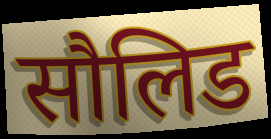
सौलिड